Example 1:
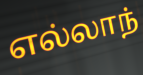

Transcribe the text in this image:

எல்லாந்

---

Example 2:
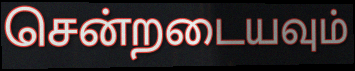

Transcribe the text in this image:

சென்றடையவும்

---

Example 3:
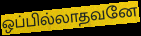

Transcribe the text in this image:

ஒப்பில்லாதவனே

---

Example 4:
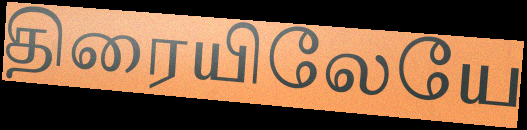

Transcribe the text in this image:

திரையிலேயே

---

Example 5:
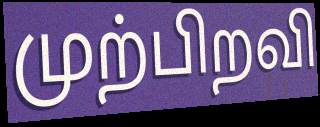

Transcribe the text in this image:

முற்பிறவி